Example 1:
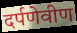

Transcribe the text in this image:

दर्पणेवीण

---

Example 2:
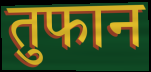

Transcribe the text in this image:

तुफान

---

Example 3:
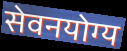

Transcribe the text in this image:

सेवनयोग्य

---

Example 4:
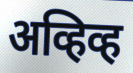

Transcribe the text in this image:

अव्हिव्ह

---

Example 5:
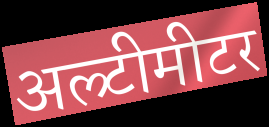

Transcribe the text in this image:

अल्टीमीटर